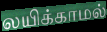
லயிக்காமல்